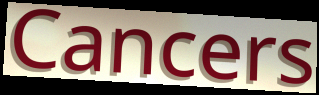
Cancers